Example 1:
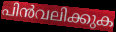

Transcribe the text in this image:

പിൻവലിക്കുക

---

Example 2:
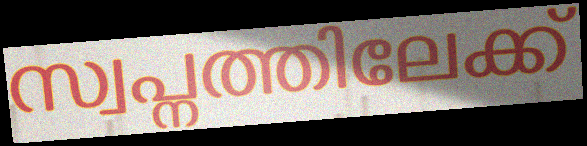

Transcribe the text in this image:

സ്വപ്നത്തിലേക്ക്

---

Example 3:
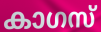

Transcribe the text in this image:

കാഗസ്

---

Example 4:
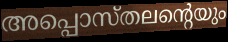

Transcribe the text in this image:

അപ്പൊസ്തലന്റെയും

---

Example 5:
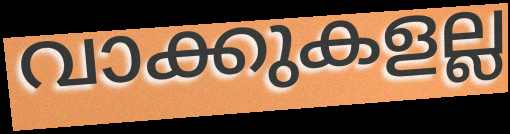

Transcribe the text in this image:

വാക്കുകളല്ല